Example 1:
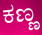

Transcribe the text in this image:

ಕಣ್ಣ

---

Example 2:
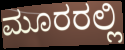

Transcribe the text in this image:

ಮೂರರಲ್ಲಿ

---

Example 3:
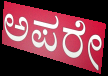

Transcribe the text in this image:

ಅಪರೇ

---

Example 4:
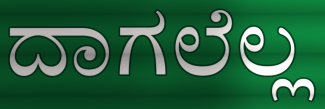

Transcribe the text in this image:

ದಾಗಲೆಲ್ಲ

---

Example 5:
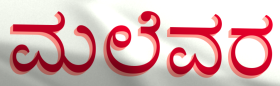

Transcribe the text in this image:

ಮಲೆವರ